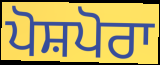
ਪੋਸ਼ਪੋਰਾ